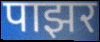
पाझर